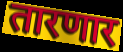
तारणार